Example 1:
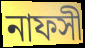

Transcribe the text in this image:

নাফসী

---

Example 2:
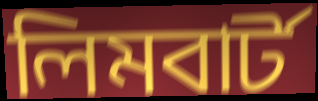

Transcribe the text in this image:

লিমবার্ট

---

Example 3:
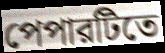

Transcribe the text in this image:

পেপারটিতে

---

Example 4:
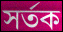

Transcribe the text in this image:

সর্তক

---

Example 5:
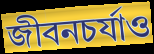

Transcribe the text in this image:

জীবনচর্যাও